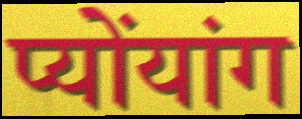
प्योंयांग